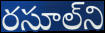
రసూల్‌ని